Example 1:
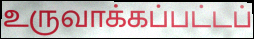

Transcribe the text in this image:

உருவாக்கப்பட்டப்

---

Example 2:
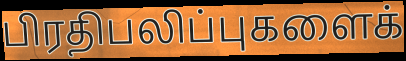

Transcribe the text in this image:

பிரதிபலிப்புகளைக்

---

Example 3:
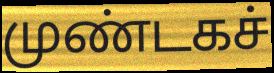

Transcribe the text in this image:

முண்டகச்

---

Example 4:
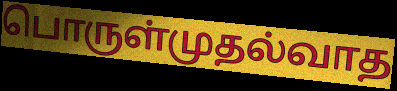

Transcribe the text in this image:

பொருள்முதல்வாத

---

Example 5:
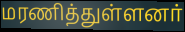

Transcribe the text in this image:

மரணித்துள்ளனர்